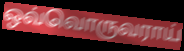
ஒவ்வொருவராய்